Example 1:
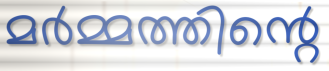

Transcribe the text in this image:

മർമ്മത്തിന്റെ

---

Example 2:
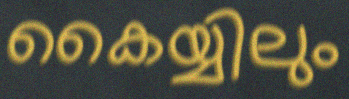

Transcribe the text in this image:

കൈയ്യിലും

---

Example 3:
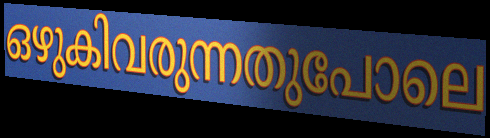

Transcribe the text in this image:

ഒഴുകിവരുന്നതുപോലെ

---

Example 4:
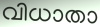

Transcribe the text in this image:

വിധാതാ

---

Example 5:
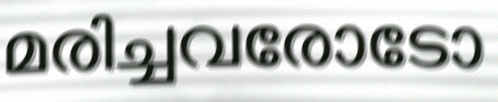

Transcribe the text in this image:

മരിച്ചവരോടോ